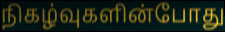
நிகழ்வுகளின்போது